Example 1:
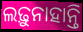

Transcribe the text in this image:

ଲଢ଼ୁନାହାନ୍ତି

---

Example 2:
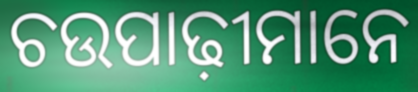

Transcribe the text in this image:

ଚଉପାଢ଼ୀମାନେ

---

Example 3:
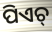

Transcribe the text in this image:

ପିଏଚ୍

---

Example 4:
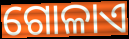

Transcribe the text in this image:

ଗୋଳାଏ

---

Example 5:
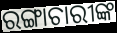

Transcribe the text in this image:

ରଙ୍ଗାଚାରୀଙ୍କ